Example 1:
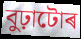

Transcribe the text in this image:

বুঢ়াটোৰ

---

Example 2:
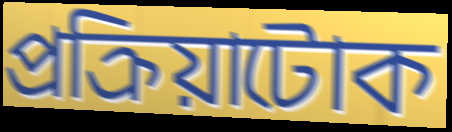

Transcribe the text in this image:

প্ৰক্ৰিয়াটোক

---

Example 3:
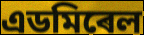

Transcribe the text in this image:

এডমিৰেল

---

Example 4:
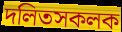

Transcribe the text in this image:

দলিতসকলক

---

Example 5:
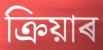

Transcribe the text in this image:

ক্ৰিয়াৰ